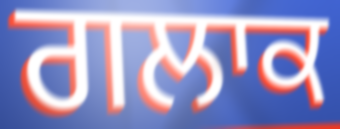
ਗਲਾਕ